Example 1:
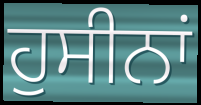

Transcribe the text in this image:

ਹੁਸੀਨਾਂ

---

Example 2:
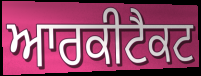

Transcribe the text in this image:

ਆਰਕੀਟੈਕਟ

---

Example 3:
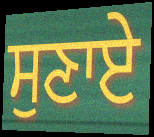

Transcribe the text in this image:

ਸੁਣਾਏ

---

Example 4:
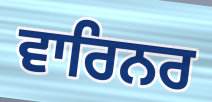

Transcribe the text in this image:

ਵਾਰਿਨਰ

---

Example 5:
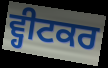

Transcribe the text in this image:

ਵ੍ਹੀਟਕਰ